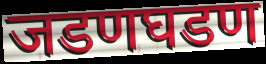
जडणघडण